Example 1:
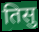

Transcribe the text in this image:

तिसु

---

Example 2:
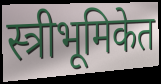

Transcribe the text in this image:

स्त्रीभूमिकेत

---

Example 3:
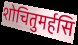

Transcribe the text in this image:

शोचितुमर्हसि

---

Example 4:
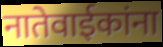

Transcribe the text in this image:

नातेवाईकांना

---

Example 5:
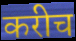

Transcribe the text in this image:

करीच